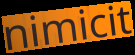
nimicit